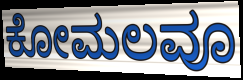
ಕೋಮಲವೂ